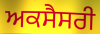
ਅਕਸੈਸਰੀ